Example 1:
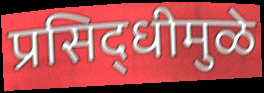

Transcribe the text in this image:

प्रसिद्धीमुळे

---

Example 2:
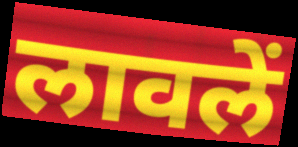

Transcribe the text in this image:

लावलें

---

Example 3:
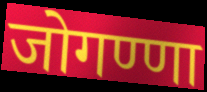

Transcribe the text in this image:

जोगण्णा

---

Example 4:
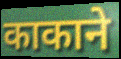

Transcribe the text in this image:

काकाने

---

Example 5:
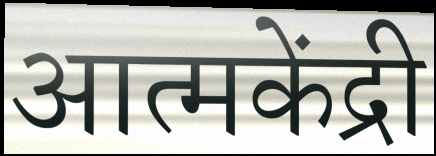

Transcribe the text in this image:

आत्मकेंद्री